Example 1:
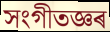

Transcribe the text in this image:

সংগীতজ্ঞৰ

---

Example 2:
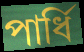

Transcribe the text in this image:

পাৰ্ধি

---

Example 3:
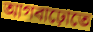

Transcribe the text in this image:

আগবাঢ়োতে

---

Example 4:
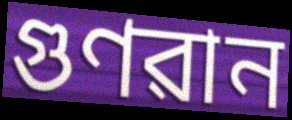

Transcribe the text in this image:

গুণৱান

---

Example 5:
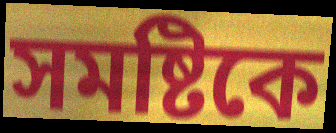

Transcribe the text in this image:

সমষ্টিকে